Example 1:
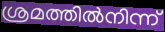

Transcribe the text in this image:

ശ്രമത്തിൽനിന്ന്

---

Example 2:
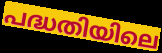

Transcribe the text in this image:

പദ്ധതിയിലെ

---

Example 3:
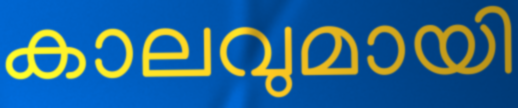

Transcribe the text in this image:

കാലവുമായി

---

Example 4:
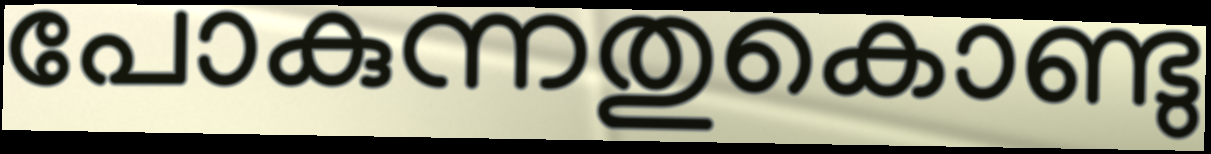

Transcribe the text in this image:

പോകുന്നതുകൊണ്ടു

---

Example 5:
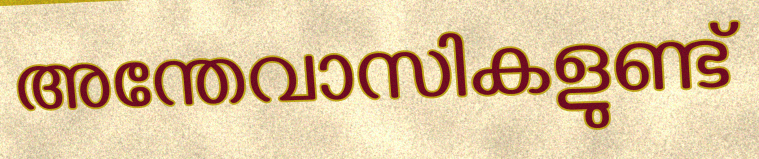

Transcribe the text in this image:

അന്തേവാസികളുണ്ട്